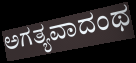
ಅಗತ್ಯವಾದಂಥ